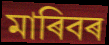
মাৰিবৰ